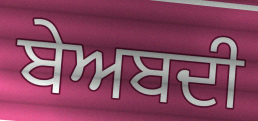
ਬੇਅਬਦੀ